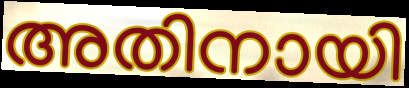
അതിനായി